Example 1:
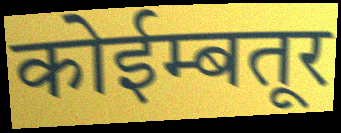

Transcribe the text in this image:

कोईम्बतूर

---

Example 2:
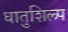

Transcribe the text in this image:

धातुशिल्प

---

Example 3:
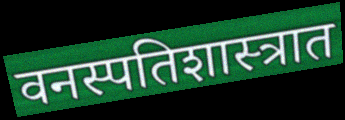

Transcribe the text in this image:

वनस्पतिशास्त्रात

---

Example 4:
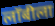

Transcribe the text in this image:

लॉबीला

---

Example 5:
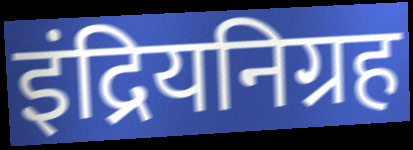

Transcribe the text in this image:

इंद्रियनिग्रह